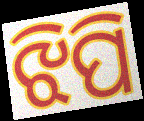
ଝିପି